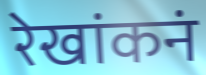
रेखांकनं